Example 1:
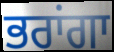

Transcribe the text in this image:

ਭਰਾਂਗਾ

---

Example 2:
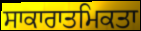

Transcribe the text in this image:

ਸਾਕਾਰਾਤਮਿਕਤਾ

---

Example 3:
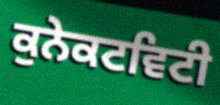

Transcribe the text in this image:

ਕੁਨੇਕਟਵਿਟੀ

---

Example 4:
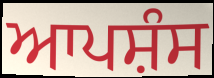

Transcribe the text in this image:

ਆਪਸ਼ੰਸ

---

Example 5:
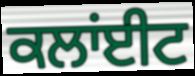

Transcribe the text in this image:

ਕਲਾਂਈਟ